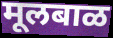
मूलबाळ